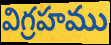
విగ్రహము